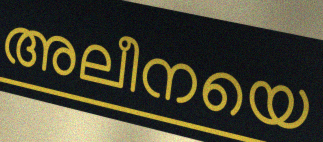
അലീനയെ